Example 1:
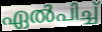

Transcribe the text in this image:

ഏൽപിച്ച്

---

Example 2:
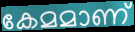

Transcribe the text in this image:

കേമമാണ്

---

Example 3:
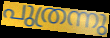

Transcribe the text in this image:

പുത്രന്നു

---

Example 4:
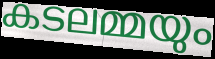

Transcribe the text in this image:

കടലമ്മയും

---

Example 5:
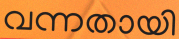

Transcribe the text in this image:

വന്നതായി